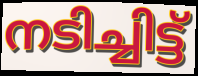
നടിച്ചിട്ട്